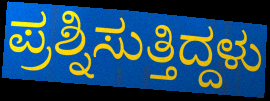
ಪ್ರಶ್ನಿಸುತ್ತಿದ್ದಳು